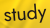
study